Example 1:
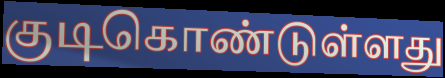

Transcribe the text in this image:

குடிகொண்டுள்ளது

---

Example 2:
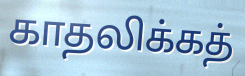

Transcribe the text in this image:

காதலிக்கத்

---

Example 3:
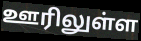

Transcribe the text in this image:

ஊரிலுள்ள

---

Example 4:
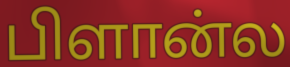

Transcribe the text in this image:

பிளான்ல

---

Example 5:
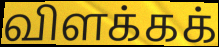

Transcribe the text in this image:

விளக்கக்